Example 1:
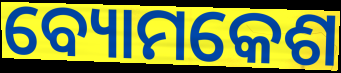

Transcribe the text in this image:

ବ୍ୟୋମକେଶ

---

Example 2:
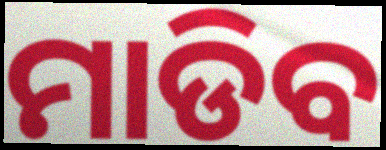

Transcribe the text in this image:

ମାଡିବ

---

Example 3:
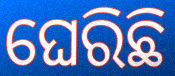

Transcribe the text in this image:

ଘେରିଛି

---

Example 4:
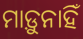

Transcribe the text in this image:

ମାଡ଼ୁନାହିଁ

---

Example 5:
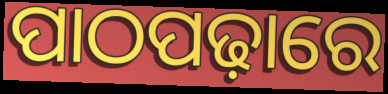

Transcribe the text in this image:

ପାଠପଢ଼ାରେ